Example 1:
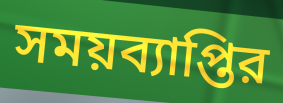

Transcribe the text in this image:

সময়ব্যাপ্তির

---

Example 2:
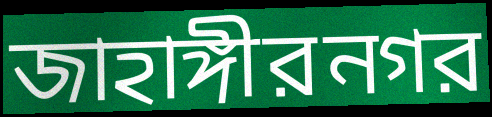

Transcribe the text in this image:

জাহাঙ্গীরনগর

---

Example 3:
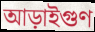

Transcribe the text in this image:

আড়াইগুণ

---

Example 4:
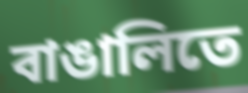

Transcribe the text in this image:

বাঙালিতে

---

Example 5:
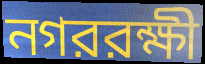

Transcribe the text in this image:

নগররক্ষী